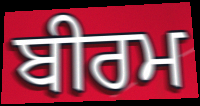
ਬੀਰਮ